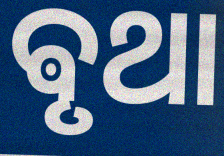
ଵୃଥା